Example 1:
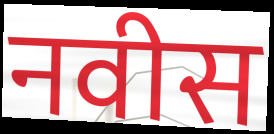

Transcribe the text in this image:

नवीस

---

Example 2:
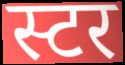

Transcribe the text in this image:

स्टर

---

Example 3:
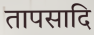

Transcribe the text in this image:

तापसादि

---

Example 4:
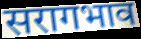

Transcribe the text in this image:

सरागभाव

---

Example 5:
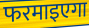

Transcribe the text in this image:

फरमाइएगा